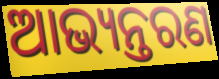
ଆଭ୍ୟନ୍ତରଣ